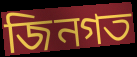
জিনগত